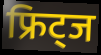
फ्रिट्ज